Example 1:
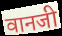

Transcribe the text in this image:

वानजी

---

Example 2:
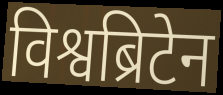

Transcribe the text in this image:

विश्वब्रिटेन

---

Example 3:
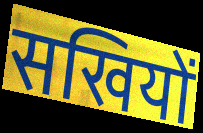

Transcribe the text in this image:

सखियों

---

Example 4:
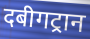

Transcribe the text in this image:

दबीगट्रान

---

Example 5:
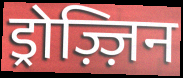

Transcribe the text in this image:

ड्रोज़्ज़िन